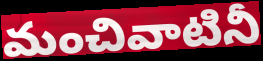
మంచివాటినీ